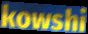
kowshi